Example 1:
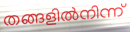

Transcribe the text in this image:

തങ്ങളിൽനിന്ന്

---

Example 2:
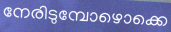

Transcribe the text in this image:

നേരിടുമ്പോഴൊക്കെ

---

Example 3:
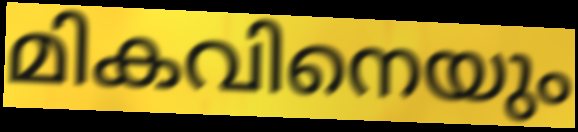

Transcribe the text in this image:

മികവിനെയും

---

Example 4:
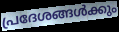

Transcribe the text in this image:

പ്രദേശങ്ങൾക്കും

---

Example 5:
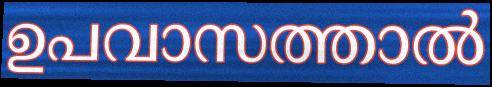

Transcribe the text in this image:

ഉപവാസത്താൽ